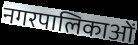
नगरपालिकाओं